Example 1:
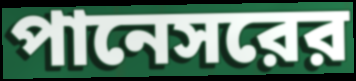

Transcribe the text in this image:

পানেসরের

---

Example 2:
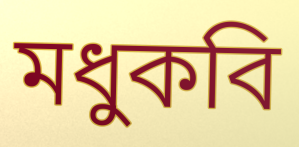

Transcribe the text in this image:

মধুকবি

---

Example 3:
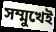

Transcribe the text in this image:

সম্মুখেই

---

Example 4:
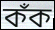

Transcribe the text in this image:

কঁক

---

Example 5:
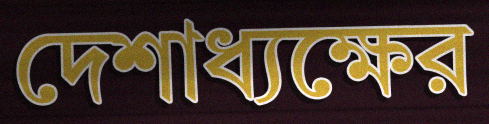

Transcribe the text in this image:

দেশাধ্যক্ষের